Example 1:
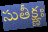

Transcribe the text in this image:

సుతీక్ష్ణః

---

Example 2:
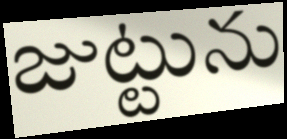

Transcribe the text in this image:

జుట్టును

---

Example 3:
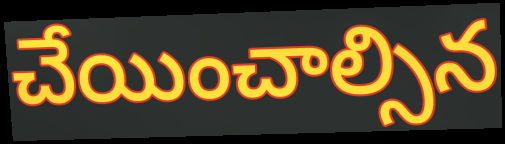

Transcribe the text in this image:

చేయించాల్సిన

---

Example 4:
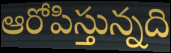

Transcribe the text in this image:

ఆరోపిస్తున్నది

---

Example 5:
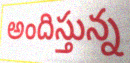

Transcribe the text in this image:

అందిస్తున్న